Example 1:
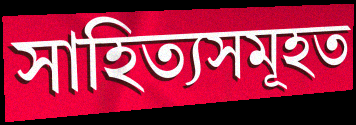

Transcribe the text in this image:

সাহিত্যসমূহত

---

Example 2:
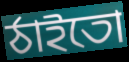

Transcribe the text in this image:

ঠাইতো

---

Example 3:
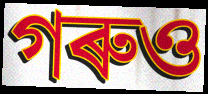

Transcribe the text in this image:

গৰুও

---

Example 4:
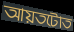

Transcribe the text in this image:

আয়তটোত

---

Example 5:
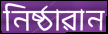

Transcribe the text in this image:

নিষ্ঠাৱান